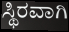
ಸ್ಥಿರವಾಗಿ